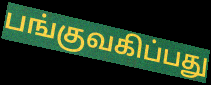
பங்குவகிப்பது